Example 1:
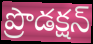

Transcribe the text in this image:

ప్రొడక్షన్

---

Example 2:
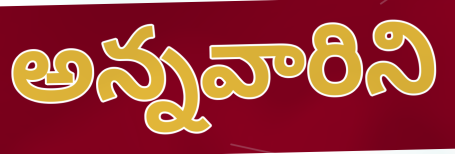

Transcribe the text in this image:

అన్నవారిని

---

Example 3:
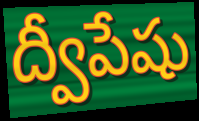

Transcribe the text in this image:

ద్వీపేషు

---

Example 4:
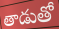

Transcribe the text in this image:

తాడుతో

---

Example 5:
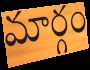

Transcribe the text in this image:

మార్గం